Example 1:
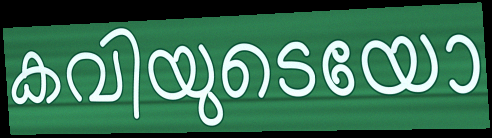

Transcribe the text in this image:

കവിയുടെയോ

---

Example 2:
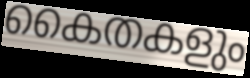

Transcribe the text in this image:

കൈതകളും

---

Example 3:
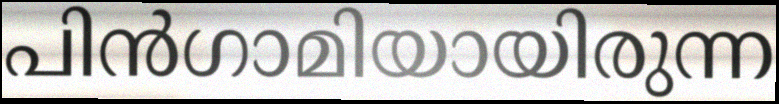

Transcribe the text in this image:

പിൻഗാമിയായിരുന്ന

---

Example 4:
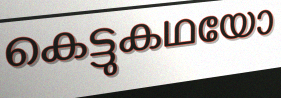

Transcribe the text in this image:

കെട്ടുകഥയോ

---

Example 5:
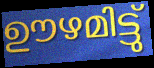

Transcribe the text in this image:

ഊഴമിട്ടു്